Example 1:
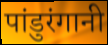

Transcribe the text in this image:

पांडुरंगानी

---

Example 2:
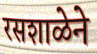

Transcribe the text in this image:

रसशाळेने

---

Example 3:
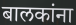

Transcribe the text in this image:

बालकांना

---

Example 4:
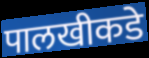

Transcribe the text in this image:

पालखीकडे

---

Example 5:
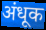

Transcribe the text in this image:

अंधूक